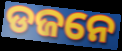
ଡଜନେ